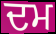
ਦਮ